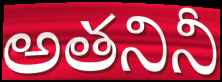
అతనినీ